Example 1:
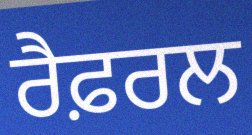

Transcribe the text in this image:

ਰੈਫ਼ਰਲ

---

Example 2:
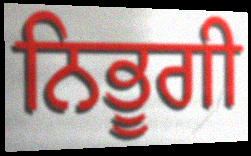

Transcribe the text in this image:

ਨਿਭੂਗੀ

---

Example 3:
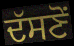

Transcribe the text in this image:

ਦੱਸਣੋਂ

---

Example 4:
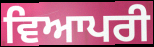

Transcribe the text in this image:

ਵਿਆਪਰੀ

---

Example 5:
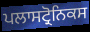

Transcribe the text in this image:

ਪਲਾਸਟ੍ਰੋਨਿਕਸ